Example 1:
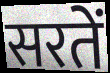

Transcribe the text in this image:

सरतें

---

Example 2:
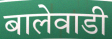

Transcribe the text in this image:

बालेवाडी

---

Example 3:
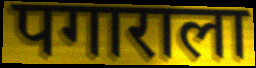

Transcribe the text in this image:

पगाराला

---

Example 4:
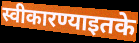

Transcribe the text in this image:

स्वीकारण्याइतके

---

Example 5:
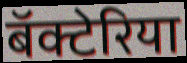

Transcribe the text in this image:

बॅक्टेरिया